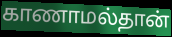
காணாமல்தான்